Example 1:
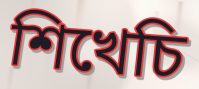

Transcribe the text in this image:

শিখেচি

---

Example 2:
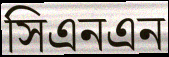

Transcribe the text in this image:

সিএনএন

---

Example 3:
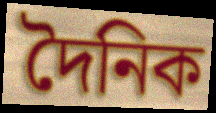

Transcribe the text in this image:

দৈনিক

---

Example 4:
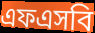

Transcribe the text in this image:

এফএসবি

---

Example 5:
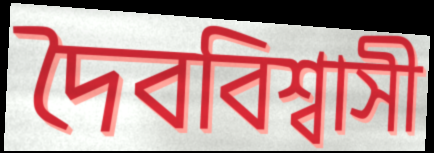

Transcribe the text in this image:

দৈববিশ্বাসী